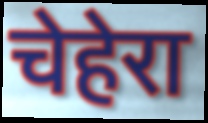
चेहेरा